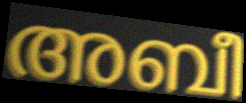
അബീ